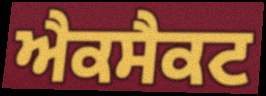
ਐਕਸੈਕਟ